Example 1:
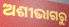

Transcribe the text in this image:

ଅଶୀଭାଗରୁ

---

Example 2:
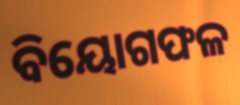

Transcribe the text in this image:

ବିୟୋଗଫଳ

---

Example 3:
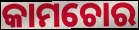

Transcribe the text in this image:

କାମଚୋର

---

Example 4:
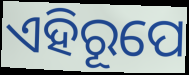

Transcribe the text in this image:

ଏହିରୂପେ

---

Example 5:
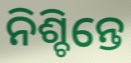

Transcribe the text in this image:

ନିଶ୍ଚିନ୍ତେ